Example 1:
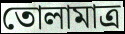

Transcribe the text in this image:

তোলামাত্র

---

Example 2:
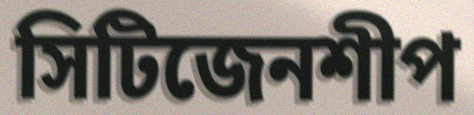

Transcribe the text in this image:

সিটিজেনশীপ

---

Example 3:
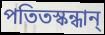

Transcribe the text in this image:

পতিতস্কন্ধান্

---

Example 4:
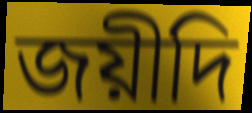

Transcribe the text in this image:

জয়ীদি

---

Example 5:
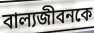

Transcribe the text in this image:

বাল্যজীবনকে